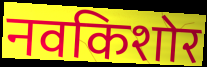
नवकिशोर